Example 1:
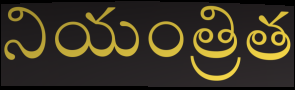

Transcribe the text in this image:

నియంత్రిత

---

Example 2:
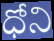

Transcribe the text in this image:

ధోని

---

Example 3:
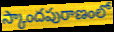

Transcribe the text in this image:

స్కాందపురాణంలో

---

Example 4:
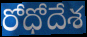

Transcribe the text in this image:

రోధోదేశ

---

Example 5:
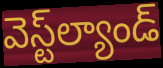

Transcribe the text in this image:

వెస్ట్‌ల్యాండ్